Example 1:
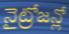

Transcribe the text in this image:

నైట్రోజన్లో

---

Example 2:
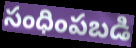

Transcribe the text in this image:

సంధింపబడి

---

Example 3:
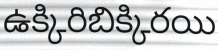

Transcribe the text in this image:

ఉక్కిరిబిక్కిరయి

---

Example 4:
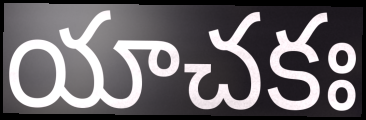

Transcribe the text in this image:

యాచకః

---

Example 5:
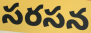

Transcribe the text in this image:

సరసన